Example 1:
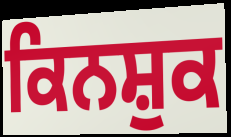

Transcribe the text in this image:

ਕਿਨਸ਼ੁਕ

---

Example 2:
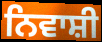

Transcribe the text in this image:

ਨਿਵਾਸ਼ੀ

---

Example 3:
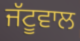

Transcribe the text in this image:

ਜੱਟੂਵਾਲ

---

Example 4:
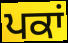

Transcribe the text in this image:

ਪਕਾਂ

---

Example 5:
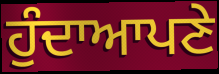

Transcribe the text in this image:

ਹੁੰਦਾਆਪਣੇ